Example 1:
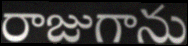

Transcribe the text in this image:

రాజుగాను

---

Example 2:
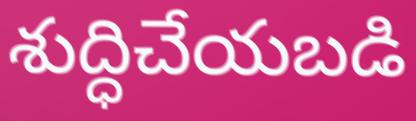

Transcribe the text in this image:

శుద్ధిచేయబడి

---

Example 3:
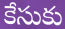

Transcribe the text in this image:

కేసుకు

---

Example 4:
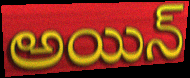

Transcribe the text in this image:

అయిన్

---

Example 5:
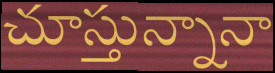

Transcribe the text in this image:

చూస్తున్నానా